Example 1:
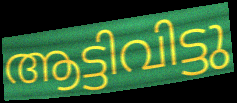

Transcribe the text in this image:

ആട്ടിവിട്ടു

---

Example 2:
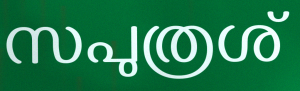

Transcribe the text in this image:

സപുത്രശ്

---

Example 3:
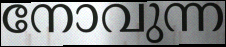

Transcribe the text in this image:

നോവുന്ന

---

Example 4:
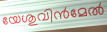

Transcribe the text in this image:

യേശുവിൻമേൽ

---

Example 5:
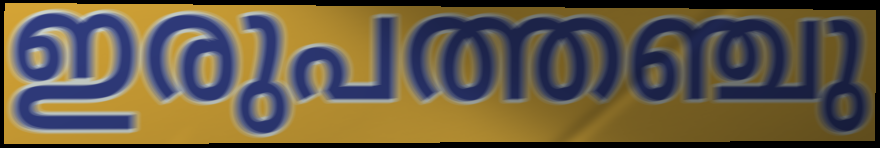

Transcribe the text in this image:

ഇരുപത്തഞ്ചു